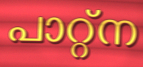
പാറ്റ്ന